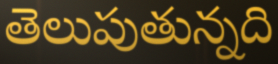
తెలుపుతున్నది